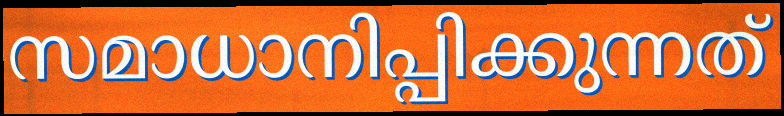
സമാധാനിപ്പിക്കുന്നത്